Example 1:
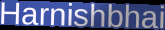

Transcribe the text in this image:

Harnishbhai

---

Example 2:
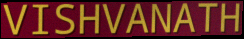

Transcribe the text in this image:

VISHVANATH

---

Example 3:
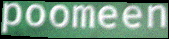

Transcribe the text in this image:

poomeen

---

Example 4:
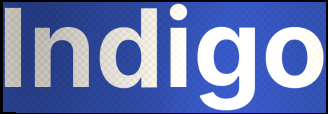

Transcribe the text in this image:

Indigo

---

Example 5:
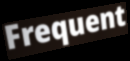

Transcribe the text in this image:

Frequent